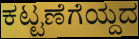
ಕಟ್ಟಣೆಗೆಯ್ದದ